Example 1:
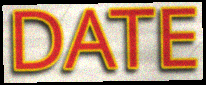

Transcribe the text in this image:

DATE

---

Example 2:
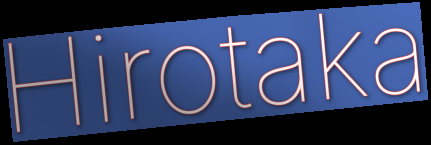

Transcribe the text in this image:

Hirotaka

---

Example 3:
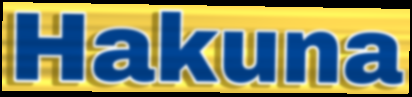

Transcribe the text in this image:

Hakuna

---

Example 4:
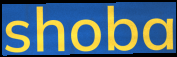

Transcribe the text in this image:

shoba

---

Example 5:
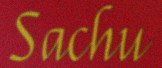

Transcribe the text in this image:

Sachu